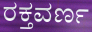
ರಕ್ತವರ್ಣ